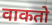
वाकतो